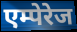
एम्पेरेज